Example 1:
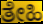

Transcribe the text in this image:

ತೇಹಿ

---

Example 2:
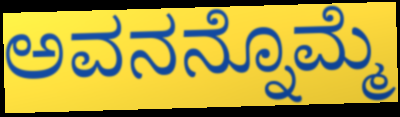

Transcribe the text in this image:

ಅವನನ್ನೊಮ್ಮೆ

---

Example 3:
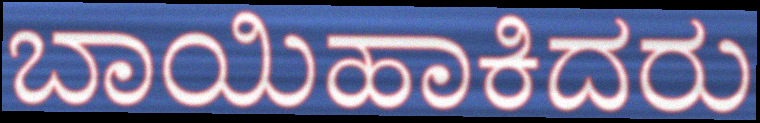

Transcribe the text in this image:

ಬಾಯಿಹಾಕಿದರು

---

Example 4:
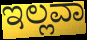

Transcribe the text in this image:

ಇಲ್ಲವಾ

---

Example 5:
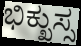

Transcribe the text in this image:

ಭಿಕ್ಖುಸ್ಸ